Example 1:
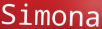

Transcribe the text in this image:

Simona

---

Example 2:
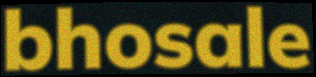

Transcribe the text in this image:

bhosale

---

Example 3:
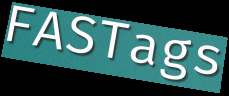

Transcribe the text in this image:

FASTags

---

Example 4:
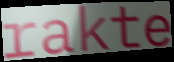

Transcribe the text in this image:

rakte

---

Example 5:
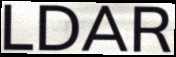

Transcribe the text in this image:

LDAR